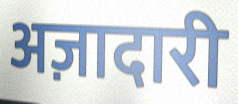
अज़ादारी